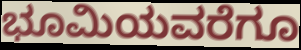
ಭೂಮಿಯವರೆಗೂ